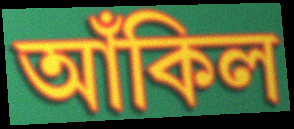
আঁকিল